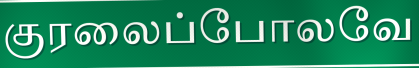
குரலைப்போலவே